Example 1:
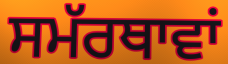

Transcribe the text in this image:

ਸਮੱਰਥਾਵਾਂ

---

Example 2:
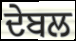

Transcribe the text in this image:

ਦੇਬਲ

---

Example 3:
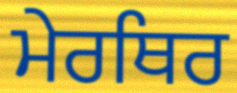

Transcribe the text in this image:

ਮੇਰਥਿਰ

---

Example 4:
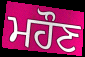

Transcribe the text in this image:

ਮਹੌਣ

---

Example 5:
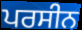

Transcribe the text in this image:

ਪਰਸੀਨ